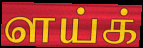
ளய்க்